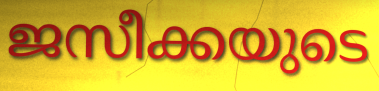
ജസീക്കയുടെ